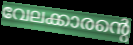
വേലക്കാരന്റെ